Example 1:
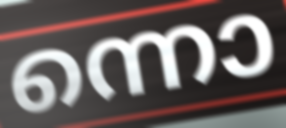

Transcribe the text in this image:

ന്നൊ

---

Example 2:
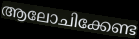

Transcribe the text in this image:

ആലോചിക്കേണ്ട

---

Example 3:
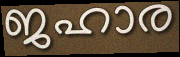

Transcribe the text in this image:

ജഹാര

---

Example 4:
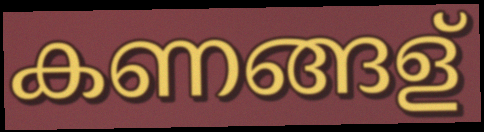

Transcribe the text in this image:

കണങ്ങള്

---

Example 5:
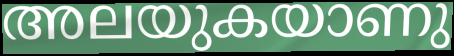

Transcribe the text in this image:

അലയുകയാണു